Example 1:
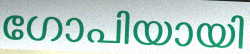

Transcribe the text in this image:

ഗോപിയായി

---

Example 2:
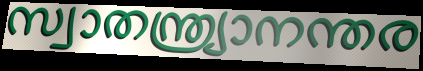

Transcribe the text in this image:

സ്വാതന്ത്ര്യാനന്തര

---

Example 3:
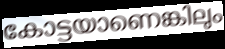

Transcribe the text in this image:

കോട്ടയാണെങ്കിലും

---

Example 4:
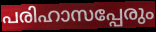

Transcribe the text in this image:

പരിഹാസപ്പേരും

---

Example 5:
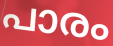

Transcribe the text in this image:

പാരം